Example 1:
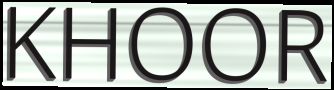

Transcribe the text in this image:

KHOOR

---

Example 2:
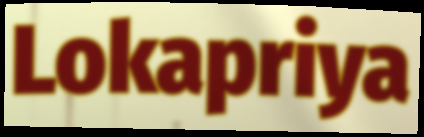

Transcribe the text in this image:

Lokapriya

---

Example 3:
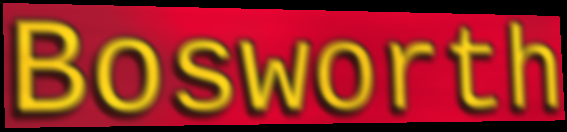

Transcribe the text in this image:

Bosworth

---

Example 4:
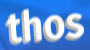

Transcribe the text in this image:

thos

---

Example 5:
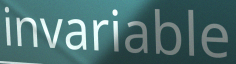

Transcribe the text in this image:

invariable